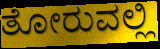
ತೋರುವಲ್ಲಿ